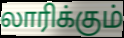
லாரிக்கும்